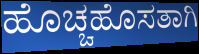
ಹೊಚ್ಚಹೊಸತಾಗಿ